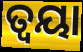
ତ୍ୱୟା